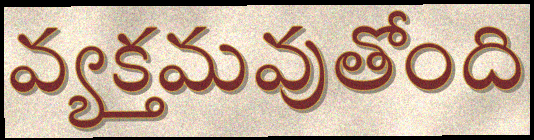
వ్యక్తమవుతోంది